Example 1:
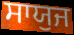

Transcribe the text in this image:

ਸਾਯੁਜ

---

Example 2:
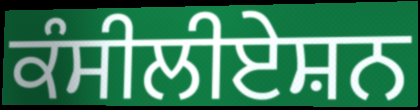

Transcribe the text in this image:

ਕੰਸੀਲੀਏਸ਼ਨ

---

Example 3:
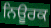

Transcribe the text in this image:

ਨਿਊਰਕ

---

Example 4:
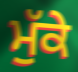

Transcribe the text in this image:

ਮੁੱਕੇ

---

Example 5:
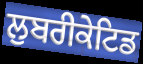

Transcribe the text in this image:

ਲੁਬਰੀਕੇਟਿਡ